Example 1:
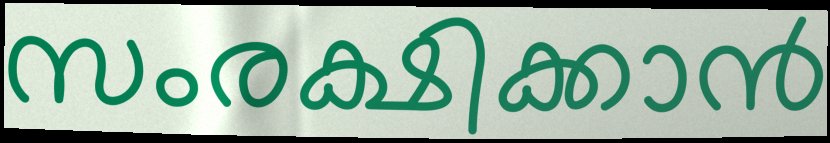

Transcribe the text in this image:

സംരക്ഷിക്കാൻ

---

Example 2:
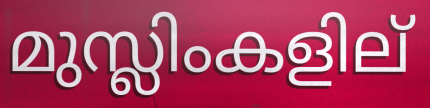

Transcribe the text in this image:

മുസ്ലിംകളില്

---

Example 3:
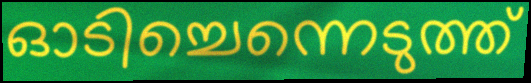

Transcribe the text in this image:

ഓടിച്ചെന്നെടുത്ത്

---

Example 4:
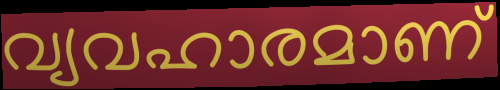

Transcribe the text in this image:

വ്യവഹാരമാണ്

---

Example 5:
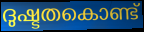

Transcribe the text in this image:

ദുഷ്ടതകൊണ്ട്